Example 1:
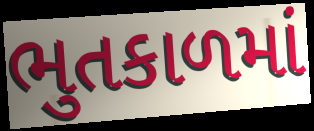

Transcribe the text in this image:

ભુતકાળમાં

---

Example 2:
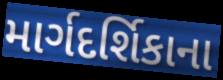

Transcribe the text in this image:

માર્ગદર્શિકાના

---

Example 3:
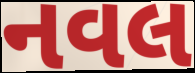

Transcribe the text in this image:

નવલ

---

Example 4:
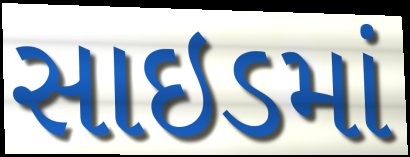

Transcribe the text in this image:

સાઇડમાં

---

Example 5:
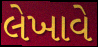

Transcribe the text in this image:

લેખાવે